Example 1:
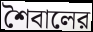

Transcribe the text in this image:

শৈবালের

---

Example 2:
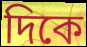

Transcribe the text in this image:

দিকে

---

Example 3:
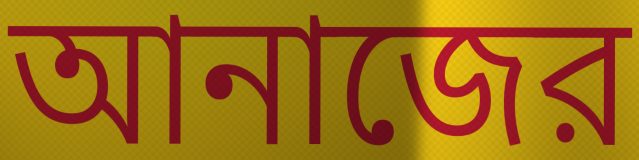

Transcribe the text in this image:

আনাজের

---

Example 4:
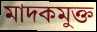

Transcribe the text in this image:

মাদকমুক্ত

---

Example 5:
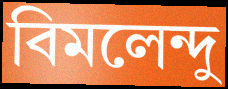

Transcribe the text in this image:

বিমলেন্দু